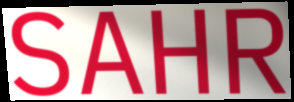
SAHR